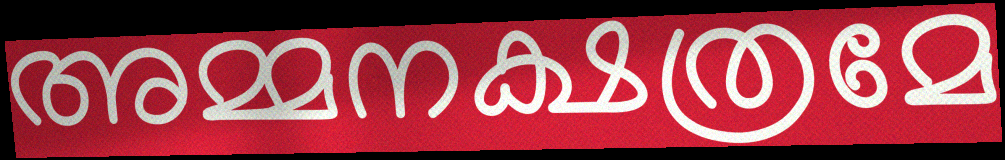
അമ്മനക്ഷത്രമേ